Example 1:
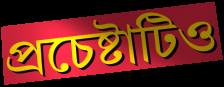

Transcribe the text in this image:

প্রচেষ্টাটিও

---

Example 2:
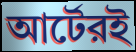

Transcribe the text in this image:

আর্টেরই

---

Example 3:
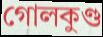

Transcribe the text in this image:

গোলকুণ্ড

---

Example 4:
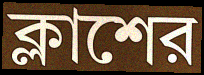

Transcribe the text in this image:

ক্লাশের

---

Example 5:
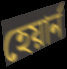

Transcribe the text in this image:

হেয়ার্ন